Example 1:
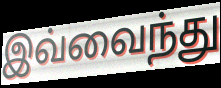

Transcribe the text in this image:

இவ்வைந்து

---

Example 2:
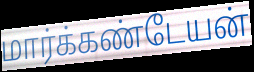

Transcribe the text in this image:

மார்க்கண்டேயன்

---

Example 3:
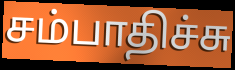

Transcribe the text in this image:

சம்பாதிச்சு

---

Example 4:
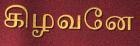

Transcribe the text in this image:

கிழவனே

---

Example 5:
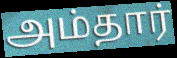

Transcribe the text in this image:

அம்தார்